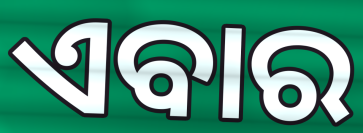
ଏବାର